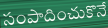
సంపాదించుకొనే